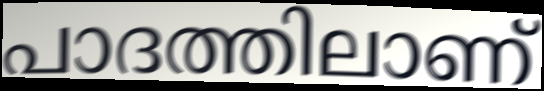
പാദത്തിലാണ്